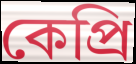
কেপ্রি